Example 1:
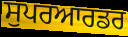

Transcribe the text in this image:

ਸੁਪਰਆਰਡਰ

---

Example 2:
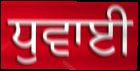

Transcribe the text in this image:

ਧੁਵਾਈ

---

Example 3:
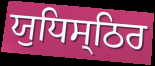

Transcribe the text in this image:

ਯੁਧਿਸ੍ਠਿਰ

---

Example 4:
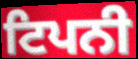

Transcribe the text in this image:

ਟਿਪਨੀ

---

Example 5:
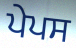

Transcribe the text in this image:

ਪੇਪਸ